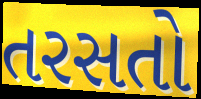
તરસતો